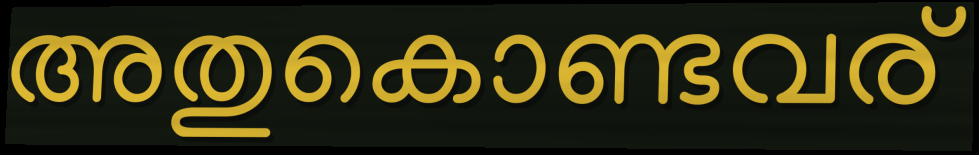
അതുകൊണ്ടവര്